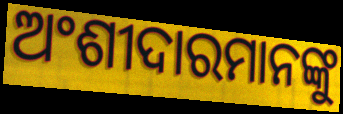
ଅଂଶୀଦାରମାନଙ୍କୁ